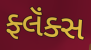
ફ્લૅંક્સ